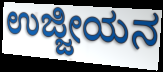
ಉಜ್ಜೀಯನ